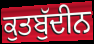
ਕੁਤਬੁੱਦੀਨ